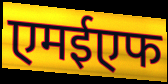
एमईएफ